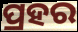
ପ୍ରହର